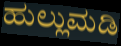
ಹುಲ್ಲುಮಡಿ